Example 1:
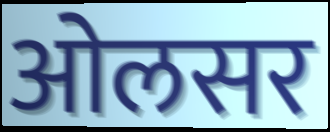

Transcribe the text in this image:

ओलसर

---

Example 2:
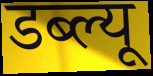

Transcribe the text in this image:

डब्ल्यू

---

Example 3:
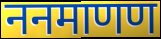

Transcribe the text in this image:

ननमाणण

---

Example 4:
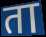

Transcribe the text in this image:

ता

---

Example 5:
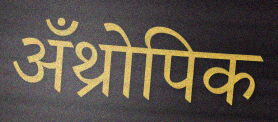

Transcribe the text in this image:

अँथ्रोपिक